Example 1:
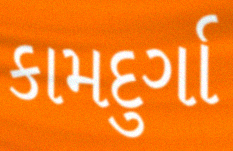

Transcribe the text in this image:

કામદુર્ગા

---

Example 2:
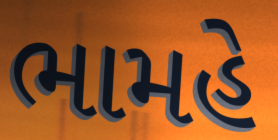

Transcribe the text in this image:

ભામહે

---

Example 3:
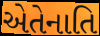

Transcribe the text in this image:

એતેનાતિ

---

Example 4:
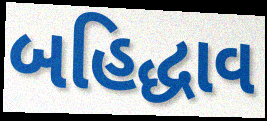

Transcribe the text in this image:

બહિદ્ધાવ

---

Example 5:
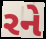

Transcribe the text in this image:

રને